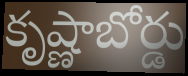
కృష్ణాబోర్డు